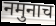
नमुनाच